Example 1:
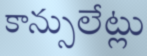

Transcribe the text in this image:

కాన్సులేట్లు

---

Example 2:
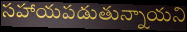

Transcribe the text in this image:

సహాయపడుతున్నాయని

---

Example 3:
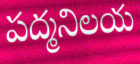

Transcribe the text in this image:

పద్మనిలయ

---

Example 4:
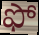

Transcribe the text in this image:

ఫో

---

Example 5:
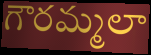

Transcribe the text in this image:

గౌరమ్మలా